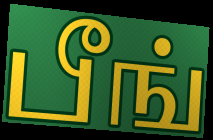
பீங்